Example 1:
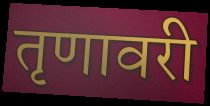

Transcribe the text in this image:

तृणावरी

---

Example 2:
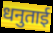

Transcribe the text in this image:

धनुताई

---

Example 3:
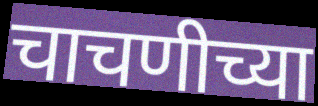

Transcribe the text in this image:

चाचणीच्या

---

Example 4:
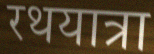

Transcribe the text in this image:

रथयात्रा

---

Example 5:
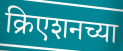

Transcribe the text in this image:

क्रिएशनच्या